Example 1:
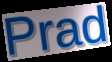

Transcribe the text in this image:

Prad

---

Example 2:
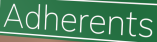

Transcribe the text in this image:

Adherents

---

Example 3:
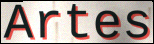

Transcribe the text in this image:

Artes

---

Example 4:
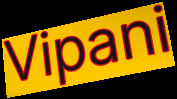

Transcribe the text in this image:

Vipani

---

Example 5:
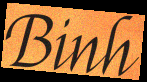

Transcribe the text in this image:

Binh